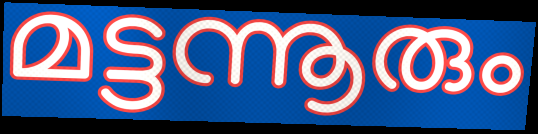
മട്ടന്നൂരും